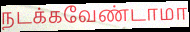
நடக்கவேண்டாமா